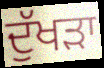
ਦੁੱਖਡ਼ਾ